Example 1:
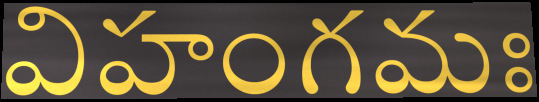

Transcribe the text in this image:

విహంగమః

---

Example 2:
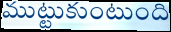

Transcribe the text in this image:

ముట్టుకుంటుంది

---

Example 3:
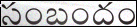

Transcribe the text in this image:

సంబందం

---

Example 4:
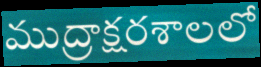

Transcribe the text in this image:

ముద్రాక్షరశాలలో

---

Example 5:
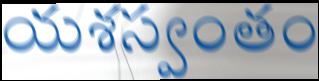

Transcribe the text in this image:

యశస్వంతం